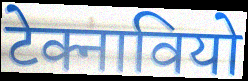
टेक्नावियो